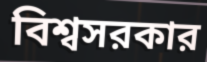
বিশ্বসরকার